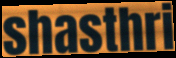
shasthri